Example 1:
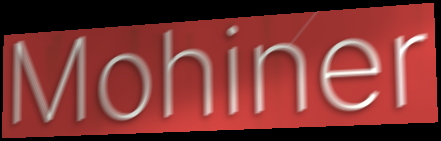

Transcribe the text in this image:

Mohiner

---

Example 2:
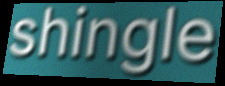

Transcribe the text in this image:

shingle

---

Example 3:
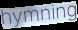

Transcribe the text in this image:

hymning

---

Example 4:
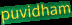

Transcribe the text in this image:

puvidham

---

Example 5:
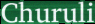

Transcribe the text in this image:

Churuli